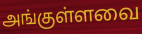
அங்குள்ளவை